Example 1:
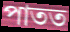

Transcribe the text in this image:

পাতত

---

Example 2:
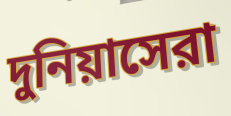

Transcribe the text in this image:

দুনিয়াসেরা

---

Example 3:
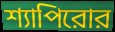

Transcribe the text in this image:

শ্যাপিরোর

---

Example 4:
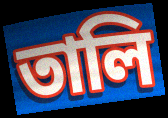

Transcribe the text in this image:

তালি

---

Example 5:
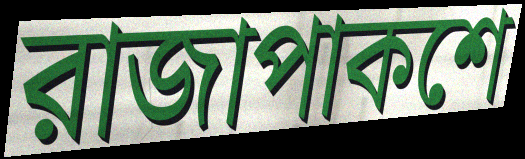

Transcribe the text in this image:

রাজাপাকশে